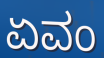
ಏವಂ